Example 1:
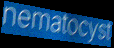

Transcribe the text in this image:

nematocyst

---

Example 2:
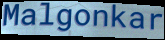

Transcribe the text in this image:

Malgonkar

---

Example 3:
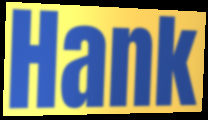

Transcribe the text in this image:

Hank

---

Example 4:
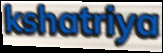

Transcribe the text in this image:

kshatriya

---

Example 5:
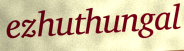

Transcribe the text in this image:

ezhuthungal